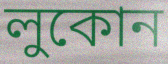
লুকোন